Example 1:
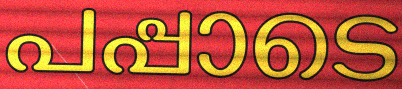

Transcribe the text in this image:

പപ്പാടെ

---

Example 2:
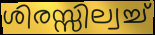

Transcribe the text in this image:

ശിരസ്സില്വച്ച്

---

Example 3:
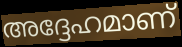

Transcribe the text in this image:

അദ്ദേഹമാണ്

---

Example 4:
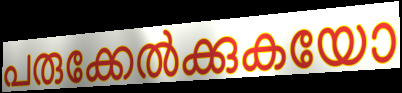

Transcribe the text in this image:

പരുക്കേൽക്കുകയോ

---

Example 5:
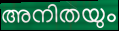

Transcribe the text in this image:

അനിതയും